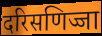
दरिसणिज्जा